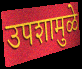
उपशामुळे